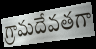
గ్రామదేవతగా